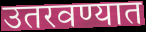
उतरवण्यात